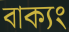
বাক্যং